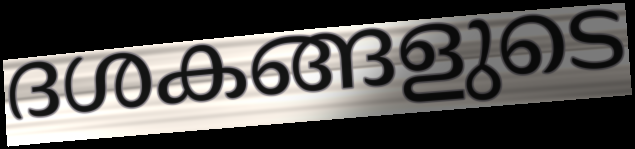
ദശകങ്ങളുടെ